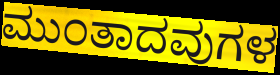
ಮುಂತಾದವುಗಳ